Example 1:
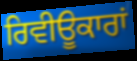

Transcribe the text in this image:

ਰਿਵੀਊਕਾਰਾਂ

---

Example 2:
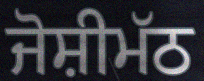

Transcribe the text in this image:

ਜੋਸ਼ੀਮੱਠ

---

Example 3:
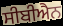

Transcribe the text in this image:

ਸੀਬੀਐਨ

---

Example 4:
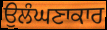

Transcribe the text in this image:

ਉਲੰਘਣਾਕਾਰ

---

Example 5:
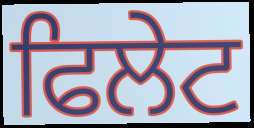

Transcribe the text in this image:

ਫਿਲੇਟ